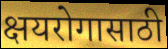
क्षयरोगासाठी